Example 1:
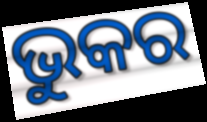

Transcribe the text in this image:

ଭୁକର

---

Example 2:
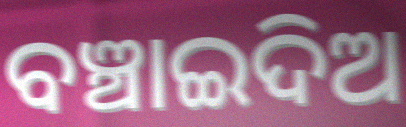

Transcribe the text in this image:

ବଞ୍ଚାଇଦିଅ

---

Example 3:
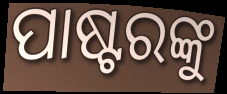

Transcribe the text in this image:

ପାଷ୍ଟରଙ୍କୁ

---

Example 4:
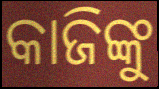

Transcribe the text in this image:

କାଜିଙ୍କୁ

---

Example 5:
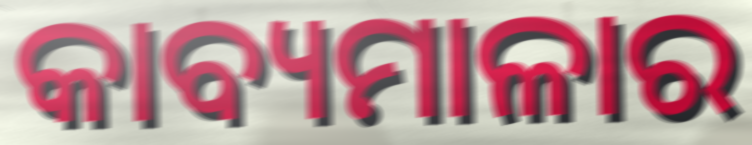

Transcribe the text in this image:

କାବ୍ୟମାଳାର